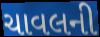
ચાવલની